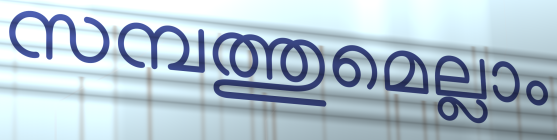
സമ്പത്തുമെല്ലാം